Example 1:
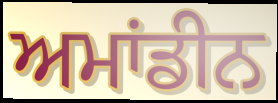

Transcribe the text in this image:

ਅਮਾਂਡੀਨ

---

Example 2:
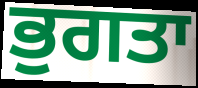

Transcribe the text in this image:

ਭੁਗਤਾ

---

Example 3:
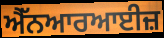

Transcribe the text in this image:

ਐੱਨਆਰਆਈਜ਼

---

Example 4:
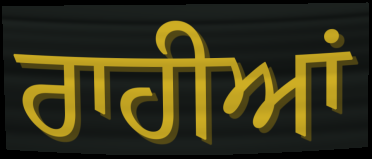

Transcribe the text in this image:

ਰਾਹੀਆਂ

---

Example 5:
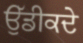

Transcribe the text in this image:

ਉੱਡੀਕਦੇ